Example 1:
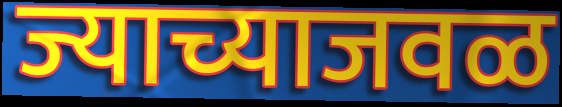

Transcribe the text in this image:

ज्याच्याजवळ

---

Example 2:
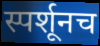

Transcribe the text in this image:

स्पर्शूनच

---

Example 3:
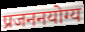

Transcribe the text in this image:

प्रजननयोग्य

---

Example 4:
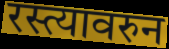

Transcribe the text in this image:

रस्त्यावरुन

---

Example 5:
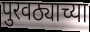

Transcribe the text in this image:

पुरवठ्याच्या